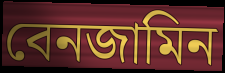
বেনজামিন